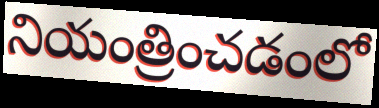
నియంత్రించడంలో